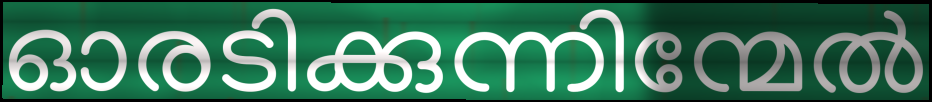
ഓരടിക്കുന്നിന്മേൽ